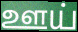
ஊய்